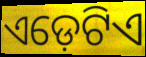
ଏଡ଼େଟିଏ